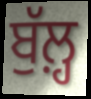
ਬੁੱਲ਼੍ਹ